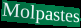
Molpastes